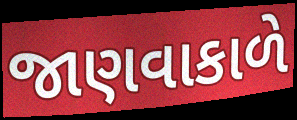
જાણવાકાળે